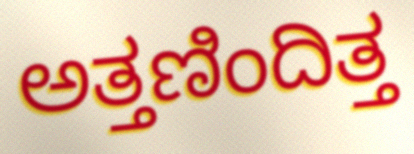
ಅತ್ತಣಿಂದಿತ್ತ